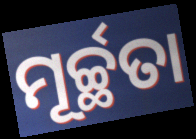
ମୂର୍ଚ୍ଛତା